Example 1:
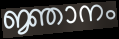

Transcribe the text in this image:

ജ്ഞാനം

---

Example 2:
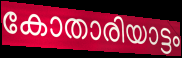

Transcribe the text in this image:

കോതാരിയാട്ടം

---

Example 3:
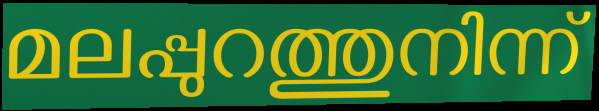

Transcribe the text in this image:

മലപ്പുറത്തുനിന്ന്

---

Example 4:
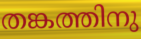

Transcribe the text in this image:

തങ്കത്തിനു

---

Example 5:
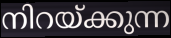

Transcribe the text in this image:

നിറയ്ക്കുന്ന